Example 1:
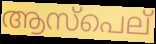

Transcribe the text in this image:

ആസ്പെല്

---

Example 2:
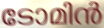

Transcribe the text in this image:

ടോമിൻ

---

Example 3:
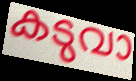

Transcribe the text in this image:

കടുവാ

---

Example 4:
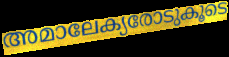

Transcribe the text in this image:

അമാലേക്യരോടുകൂടെ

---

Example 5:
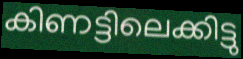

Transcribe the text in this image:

കിണട്ടിലെക്കിട്ടു